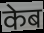
केब